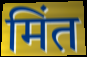
मिंत